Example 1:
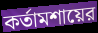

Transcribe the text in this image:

কর্তামশায়ের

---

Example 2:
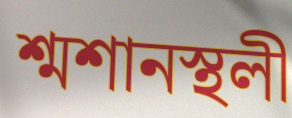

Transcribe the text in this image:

শ্মশানস্থলী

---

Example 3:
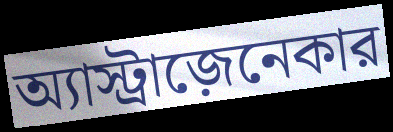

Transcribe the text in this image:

অ্যাস্ট্রাজ়েনেকার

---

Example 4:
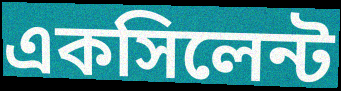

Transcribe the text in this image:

একসিলেন্ট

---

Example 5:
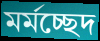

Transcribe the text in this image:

মর্মচ্ছেদ